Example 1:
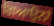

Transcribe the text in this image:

ਗਿਆਉਨਾਂ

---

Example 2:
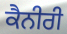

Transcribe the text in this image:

ਕੈਨੀਰੀ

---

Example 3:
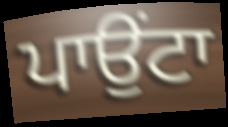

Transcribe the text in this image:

ਪਾਉੰਟਾ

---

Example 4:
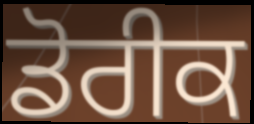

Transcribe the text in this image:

ਡੋਰੀਕ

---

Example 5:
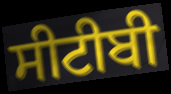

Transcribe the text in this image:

ਸੀਟੀਬੀ